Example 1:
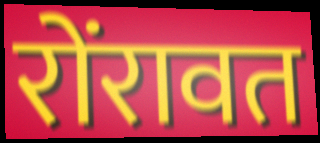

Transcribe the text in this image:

रोंरावत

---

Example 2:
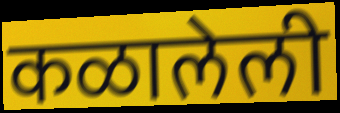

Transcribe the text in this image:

कळालेली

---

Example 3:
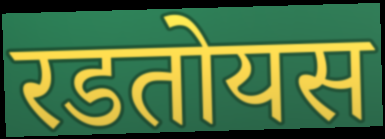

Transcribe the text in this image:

रडतोयस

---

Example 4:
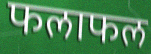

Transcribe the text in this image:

फलाफल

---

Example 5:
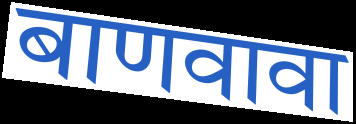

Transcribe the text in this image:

बाणवावा